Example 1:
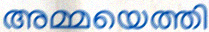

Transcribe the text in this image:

അമ്മയെത്തി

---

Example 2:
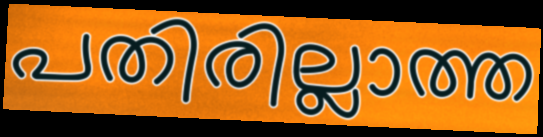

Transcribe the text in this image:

പതിരില്ലാത്ത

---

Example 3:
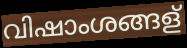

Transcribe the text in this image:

വിഷാംശങ്ങള്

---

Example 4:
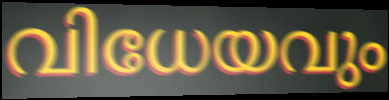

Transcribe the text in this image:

വിധേയവും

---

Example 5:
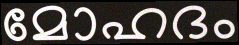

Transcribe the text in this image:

മോഹദം